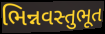
ભિન્નવસ્તુભૂત